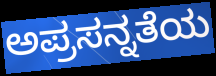
ಅಪ್ರಸನ್ನತೆಯ